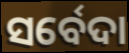
ସର୍ବେଦା